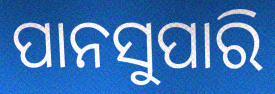
ପାନସୁପାରି